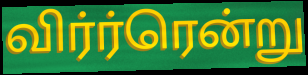
விர்ர்ரென்று